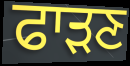
ਫਾੜਣ